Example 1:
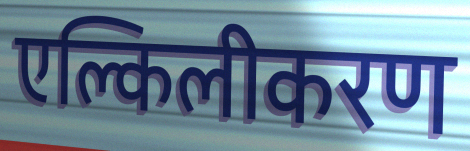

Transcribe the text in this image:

एल्किलीकरण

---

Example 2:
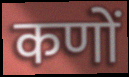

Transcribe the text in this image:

कणों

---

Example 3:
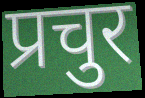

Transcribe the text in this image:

प्रचुर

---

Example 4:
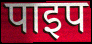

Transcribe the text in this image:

पाइप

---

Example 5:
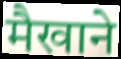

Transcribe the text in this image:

मैखाने